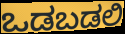
ಒಡಬಡಲಿ